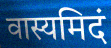
वास्यमिदं